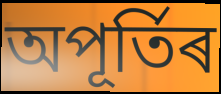
অপূৰ্তিৰ